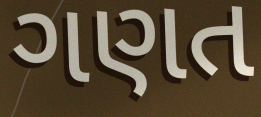
ગણત